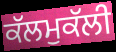
ਕੱਲਮੁਕੱਲੀ